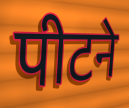
पीटने